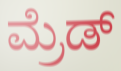
ಮ್ರೆಡ್